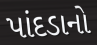
પાંદડાનો